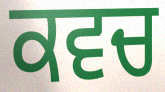
ਕਵਚ